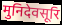
मुनिदेवसूरि